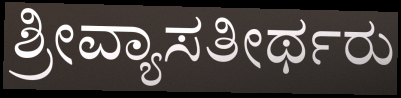
ಶ್ರೀವ್ಯಾಸತೀರ್ಥರು